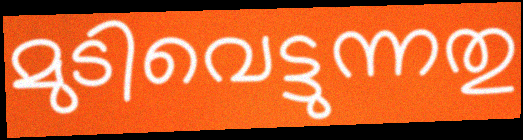
മുടിവെട്ടുന്നതു